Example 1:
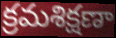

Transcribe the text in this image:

క్రమశిక్షణా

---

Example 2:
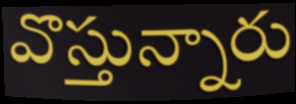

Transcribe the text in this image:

వొస్తున్నారు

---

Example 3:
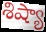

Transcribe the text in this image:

శిష్యా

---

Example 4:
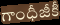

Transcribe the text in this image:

గాంధీజీకీ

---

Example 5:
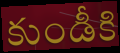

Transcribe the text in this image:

కుండీకి